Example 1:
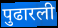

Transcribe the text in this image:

पुढारली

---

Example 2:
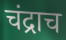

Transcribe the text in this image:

चंद्राच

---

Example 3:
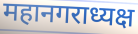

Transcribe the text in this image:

महानगराध्यक्ष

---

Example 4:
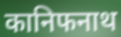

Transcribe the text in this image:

कानिफनाथ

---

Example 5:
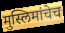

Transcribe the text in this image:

मुस्लिमांचेच